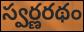
స్వర్ణరథం